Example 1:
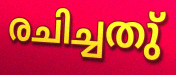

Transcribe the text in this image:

രചിച്ചതു്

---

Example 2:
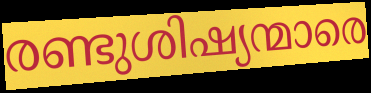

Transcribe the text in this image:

രണ്ടുശിഷ്യന്മാരെ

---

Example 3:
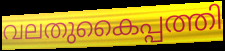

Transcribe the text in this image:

വലതുകൈപ്പത്തി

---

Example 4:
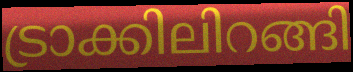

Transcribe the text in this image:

ട്രാക്കിലിറങ്ങി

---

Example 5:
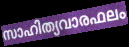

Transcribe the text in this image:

സാഹിത്യവാരഫലം